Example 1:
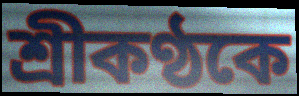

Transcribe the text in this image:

শ্রীকণ্ঠকে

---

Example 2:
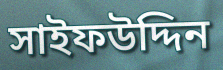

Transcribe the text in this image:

সাইফউদ্দিন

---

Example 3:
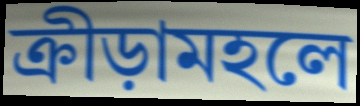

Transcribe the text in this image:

ক্রীড়ামহলে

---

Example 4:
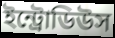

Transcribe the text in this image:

ইন্ট্রোডিউস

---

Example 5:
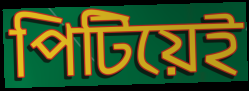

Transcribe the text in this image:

পিটিয়েই